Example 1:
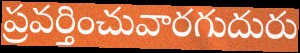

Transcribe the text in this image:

ప్రవర్తించువారగుదురు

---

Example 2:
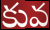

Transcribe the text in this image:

కువ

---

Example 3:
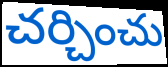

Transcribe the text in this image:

చర్చించు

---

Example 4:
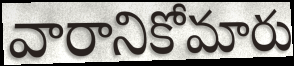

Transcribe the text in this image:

వారానికోమారు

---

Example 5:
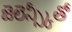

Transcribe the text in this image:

జెలెన్స్కీతో